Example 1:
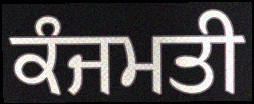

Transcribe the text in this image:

ਕੰਜਮਤੀ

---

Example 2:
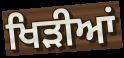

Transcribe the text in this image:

ਖਿੜੀਆਂ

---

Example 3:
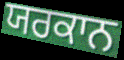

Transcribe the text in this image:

ਯਰਕਾਨ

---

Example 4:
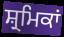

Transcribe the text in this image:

ਸ਼੍ਰਮਿਕਾਂ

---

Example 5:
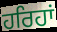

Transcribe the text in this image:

ਹਰਿਹਾਂ